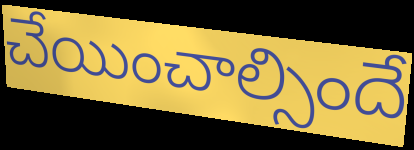
చేయించాల్సిందే